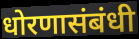
धोरणासंबंधी